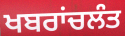
ਖਬਰਾਂਚਲੰਤ